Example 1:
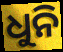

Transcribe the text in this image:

ଧୁନି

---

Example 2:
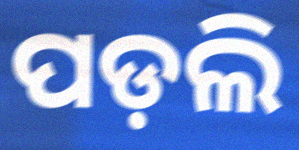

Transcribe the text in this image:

ପଡ଼ଲି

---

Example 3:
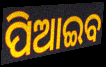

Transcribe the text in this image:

ପିଆଇବ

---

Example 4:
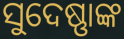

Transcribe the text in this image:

ସୁଦେଷ୍ଣାଙ୍କ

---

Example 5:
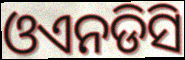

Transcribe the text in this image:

ଓଏନଡିସି